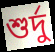
শুর্দু